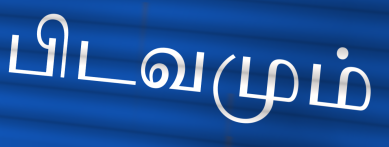
பிடவமும்